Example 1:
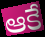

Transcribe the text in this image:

ఆకే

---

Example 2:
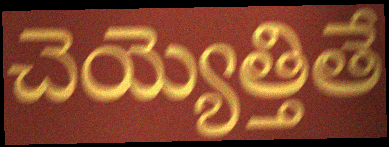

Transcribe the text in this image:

చెయ్యెత్తితే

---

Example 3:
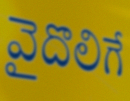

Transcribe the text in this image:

వైదొలిగే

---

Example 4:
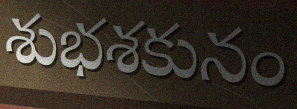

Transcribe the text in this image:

శుభశకునం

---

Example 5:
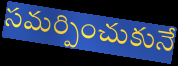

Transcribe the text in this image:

సమర్పించుకునే